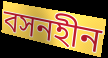
বসনহীন